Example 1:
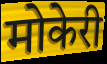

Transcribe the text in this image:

मोकेरी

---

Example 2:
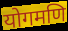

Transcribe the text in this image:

योगमणि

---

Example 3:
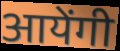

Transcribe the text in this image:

आयेंगी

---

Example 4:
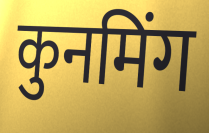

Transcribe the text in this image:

कुनमिंग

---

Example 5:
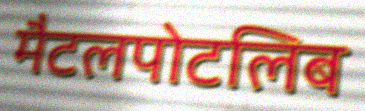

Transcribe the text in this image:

मैटलपोटलिब